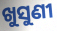
ଖୁସୁଣୀ